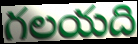
గలయది